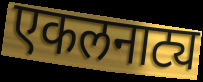
एकलनाट्य